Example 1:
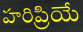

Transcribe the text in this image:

హరిప్రియే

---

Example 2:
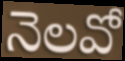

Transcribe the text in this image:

నెలవో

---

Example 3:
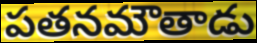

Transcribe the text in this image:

పతనమౌతాడు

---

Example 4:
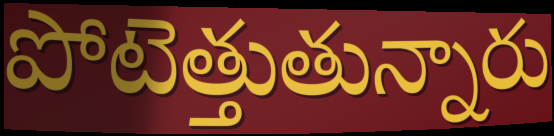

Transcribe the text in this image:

పోటెత్తుతున్నారు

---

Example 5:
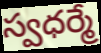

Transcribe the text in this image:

స్వధర్మే